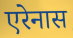
एरेनास